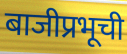
बाजीप्रभूची